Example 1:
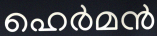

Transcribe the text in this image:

ഹെർമൻ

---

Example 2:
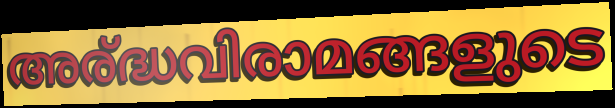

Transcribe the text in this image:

അര്ദ്ധവിരാമങ്ങളുടെ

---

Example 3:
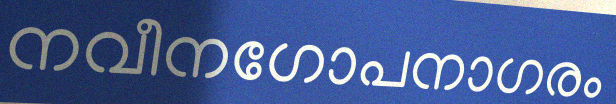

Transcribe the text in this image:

നവീനഗോപനാഗരം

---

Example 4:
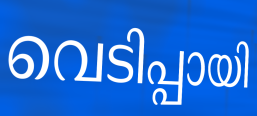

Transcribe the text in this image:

വെടിപ്പായി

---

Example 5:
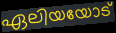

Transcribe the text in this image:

ഏലിയയോട്